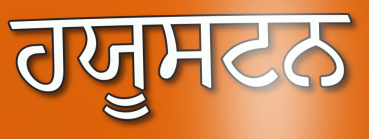
ਹਯੂਸਟਨ